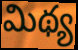
మిథ్య